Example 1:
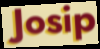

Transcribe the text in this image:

Josip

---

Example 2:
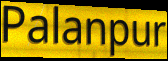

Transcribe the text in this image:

Palanpur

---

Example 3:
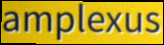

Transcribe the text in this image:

amplexus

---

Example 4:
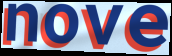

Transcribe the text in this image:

nove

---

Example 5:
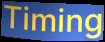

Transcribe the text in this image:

Timing